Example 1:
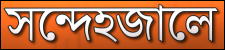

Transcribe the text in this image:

সন্দেহজালে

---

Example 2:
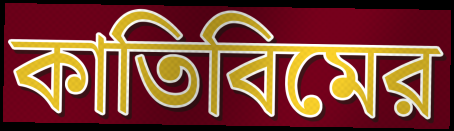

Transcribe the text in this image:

কাতিবিমের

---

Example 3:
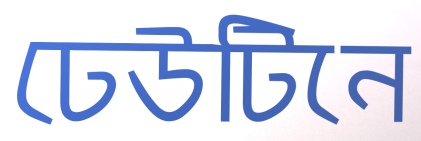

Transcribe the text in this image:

ঢেউটিনে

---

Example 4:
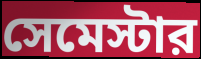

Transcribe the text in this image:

সেমেস্টার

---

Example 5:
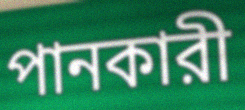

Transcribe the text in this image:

পানকারী